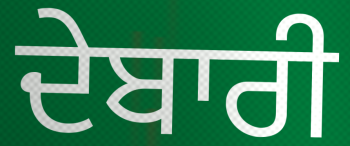
ਦੇਬਾਰੀ